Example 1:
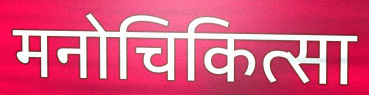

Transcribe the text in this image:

मनोचिकित्सा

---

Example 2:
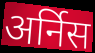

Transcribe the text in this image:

अर्निस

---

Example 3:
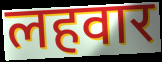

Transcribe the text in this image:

लहवार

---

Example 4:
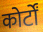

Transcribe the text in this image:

कोर्टों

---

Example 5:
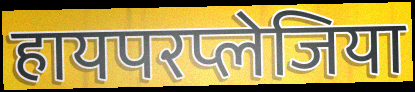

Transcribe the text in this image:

हायपरप्लेजिया